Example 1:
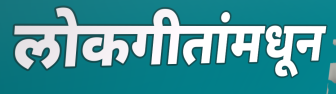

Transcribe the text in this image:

लोकगीतांमधून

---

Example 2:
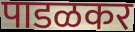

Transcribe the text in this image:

पाडळकर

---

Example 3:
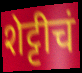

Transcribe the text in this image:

शेट्टीचं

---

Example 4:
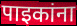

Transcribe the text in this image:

पाइकांना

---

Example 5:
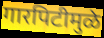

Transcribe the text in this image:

गारपिटीमुळे